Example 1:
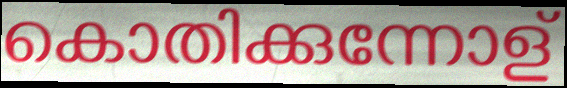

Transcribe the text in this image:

കൊതിക്കുന്നോള്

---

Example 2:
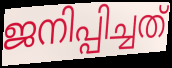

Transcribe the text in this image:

ജനിപ്പിച്ചത്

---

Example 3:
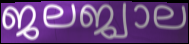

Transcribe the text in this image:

ജലജ്വാല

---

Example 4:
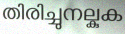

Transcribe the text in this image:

തിരിച്ചുനല്കുക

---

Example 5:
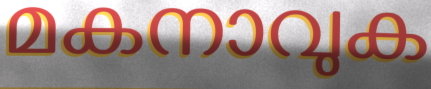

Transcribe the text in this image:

മകനാവുക